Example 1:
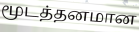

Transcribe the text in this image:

மூடத்தனமான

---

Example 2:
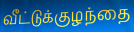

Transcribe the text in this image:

வீட்டுக்குழந்தை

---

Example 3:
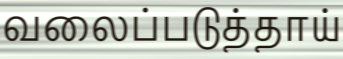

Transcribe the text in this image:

வலைப்படுத்தாய்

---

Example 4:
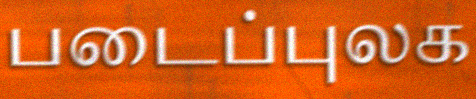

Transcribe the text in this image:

படைப்புலக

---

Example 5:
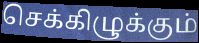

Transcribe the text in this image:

செக்கிழுக்கும்